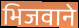
भिजवाने